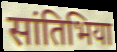
सांतिभिया